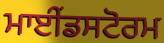
ਮਾਈਂਡਸਟੋਰਮ